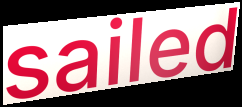
sailed